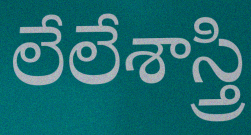
లేలేశాస్త్రి